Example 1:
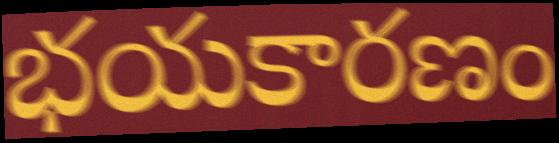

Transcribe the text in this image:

భయకారణం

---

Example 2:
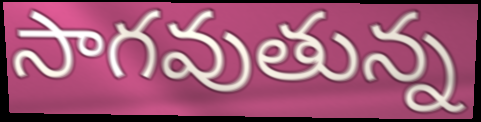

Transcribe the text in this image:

సాగవుతున్న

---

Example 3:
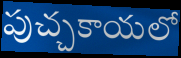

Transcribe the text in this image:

పుచ్చకాయలో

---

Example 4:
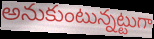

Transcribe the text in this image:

అనుకుంటున్నట్టుగా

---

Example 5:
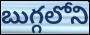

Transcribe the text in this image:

బుగ్గలోని